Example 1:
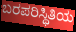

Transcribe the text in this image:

ಬರಪರಿಸ್ಥಿತಿಯ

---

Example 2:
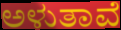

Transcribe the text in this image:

ಅಳುತಾವೆ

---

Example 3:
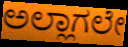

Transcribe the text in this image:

ಅಲ್ಲಾಗಲೇ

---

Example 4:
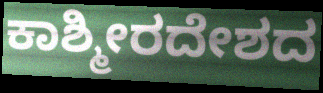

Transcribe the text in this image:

ಕಾಶ್ಮೀರದೇಶದ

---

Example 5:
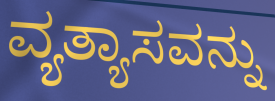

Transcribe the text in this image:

ವ್ಯತ್ಯಾಸವನ್ನು